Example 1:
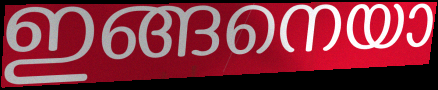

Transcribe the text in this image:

ഇങ്ങനെയാ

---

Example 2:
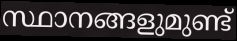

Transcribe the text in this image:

സ്ഥാനങ്ങളുമുണ്ട്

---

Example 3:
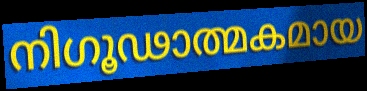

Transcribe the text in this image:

നിഗൂഢാത്മകമായ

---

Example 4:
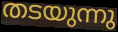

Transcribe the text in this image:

തടയുന്നു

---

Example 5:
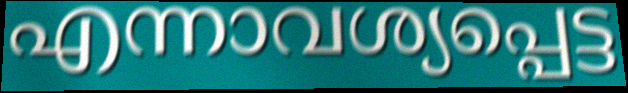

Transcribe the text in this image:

എന്നാവശ്യപ്പെട്ട